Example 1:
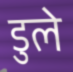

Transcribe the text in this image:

डुले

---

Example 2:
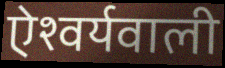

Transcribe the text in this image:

ऐश्वर्यवाली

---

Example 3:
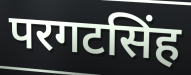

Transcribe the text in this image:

परगटसिंह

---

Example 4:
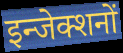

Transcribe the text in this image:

इन्जेक्शनों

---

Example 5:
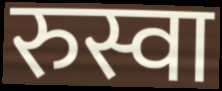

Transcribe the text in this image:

रुस्वा